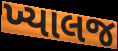
ખ્યાલજ